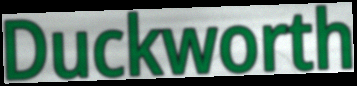
Duckworth